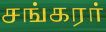
சங்கரர்